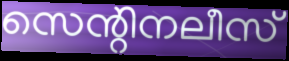
സെന്റിനലീസ്